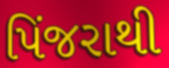
પિંજરાથી